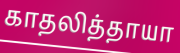
காதலித்தாயா